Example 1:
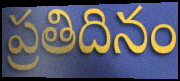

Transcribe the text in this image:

ప్రతిదినం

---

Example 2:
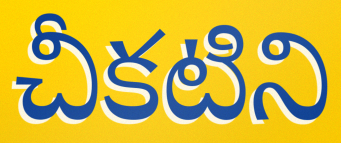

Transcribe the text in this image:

చీకటిని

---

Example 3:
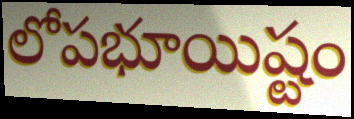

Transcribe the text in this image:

లోపభూయిష్టం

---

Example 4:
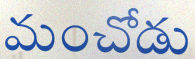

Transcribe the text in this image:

మంచోడు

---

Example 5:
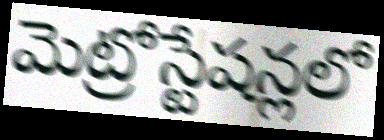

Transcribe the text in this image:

మెట్రోస్టేషన్లలో